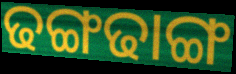
ଢଙ୍ଗଢାଙ୍ଗ